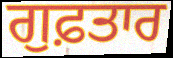
ਗੁਫ਼ਤਾਰ